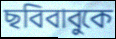
ছবিবাবুকে